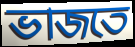
ভাজতে